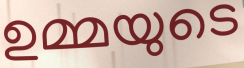
ഉമ്മയുടെ